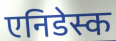
एनिडेस्क